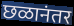
छळानंतर